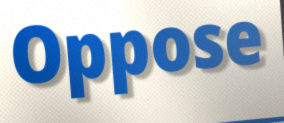
Oppose